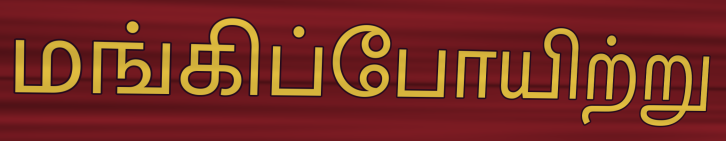
மங்கிப்போயிற்று